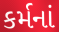
કર્મનાં